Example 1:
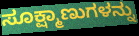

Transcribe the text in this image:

ಸೂಕ್ಷ್ಮಾಣುಗಳನ್ನು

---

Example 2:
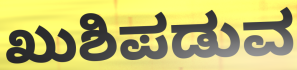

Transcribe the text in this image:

ಖುಶಿಪಡುವ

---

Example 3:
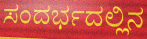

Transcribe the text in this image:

ಸಂದರ್ಭದಲ್ಲಿನ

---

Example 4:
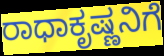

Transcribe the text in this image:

ರಾಧಾಕೃಷ್ಣನಿಗೆ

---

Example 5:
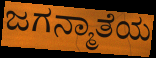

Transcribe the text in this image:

ಜಗನ್ಮಾತೆಯ